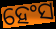
ହେଂସ